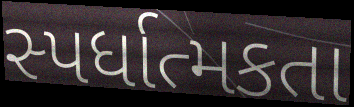
સ્પર્ધાત્મકતા